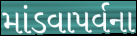
માંડવાપર્વના